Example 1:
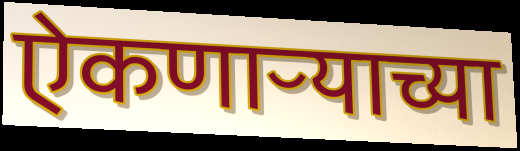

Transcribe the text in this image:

ऐकणाऱ्याच्या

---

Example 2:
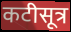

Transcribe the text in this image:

कटीसूत्र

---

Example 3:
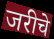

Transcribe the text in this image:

जरीचे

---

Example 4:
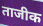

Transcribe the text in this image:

ताजीक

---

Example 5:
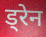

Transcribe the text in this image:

ड्रेन